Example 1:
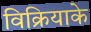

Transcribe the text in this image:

विक्रियाके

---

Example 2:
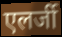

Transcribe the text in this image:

एलर्जी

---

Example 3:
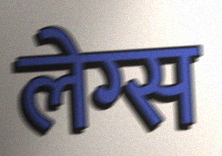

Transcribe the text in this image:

लेग्स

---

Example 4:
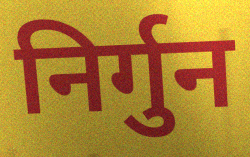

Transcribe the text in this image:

निर्गुन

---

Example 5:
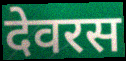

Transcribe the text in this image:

देवरस